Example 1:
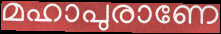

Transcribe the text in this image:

മഹാപുരാണേ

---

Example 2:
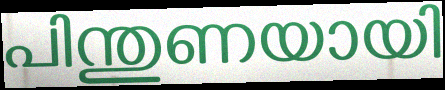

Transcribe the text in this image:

പിന്തുണയായി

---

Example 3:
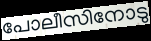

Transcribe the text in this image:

പോലീസിനോടു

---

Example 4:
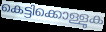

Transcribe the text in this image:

കെട്ടിക്കൊള്ളുക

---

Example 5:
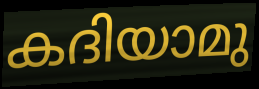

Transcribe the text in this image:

കദിയാമു